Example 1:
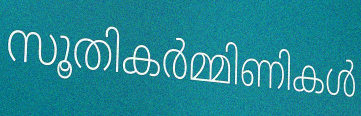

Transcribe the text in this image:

സൂതികർമ്മിണികൾ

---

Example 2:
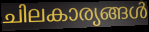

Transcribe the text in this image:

ചിലകാര്യങ്ങൾ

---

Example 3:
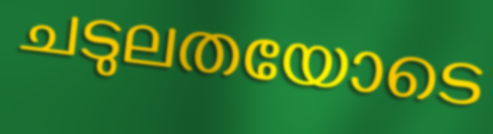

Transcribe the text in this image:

ചടുലതയോടെ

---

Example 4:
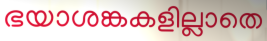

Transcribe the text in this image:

ഭയാശങ്കകളില്ലാതെ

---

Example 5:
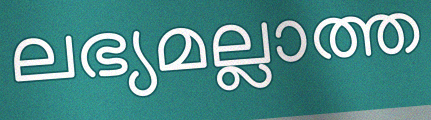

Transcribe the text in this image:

ലഭ്യമല്ലാത്ത